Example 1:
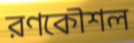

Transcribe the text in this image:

রণকৌশল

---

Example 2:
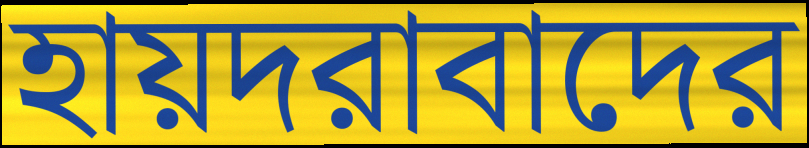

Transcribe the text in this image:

হায়দরাবাদের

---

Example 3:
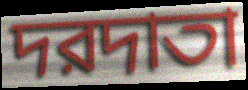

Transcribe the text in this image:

দরদাতা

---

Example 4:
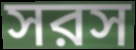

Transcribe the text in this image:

সরস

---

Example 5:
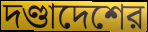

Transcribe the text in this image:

দণ্ডাদেশের